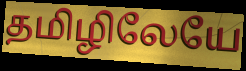
தமிழிலேயே